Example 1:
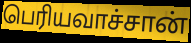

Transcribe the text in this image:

பெரியவாச்சான்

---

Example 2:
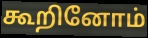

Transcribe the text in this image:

கூறினோம்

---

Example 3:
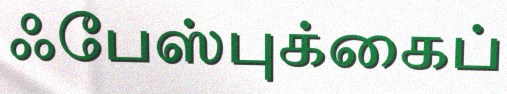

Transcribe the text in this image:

ஃபேஸ்புக்கைப்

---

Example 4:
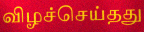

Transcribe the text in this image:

விழச்செய்தது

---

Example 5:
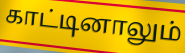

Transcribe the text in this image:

காட்டினாலும்